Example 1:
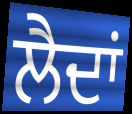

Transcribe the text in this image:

ਲੈਦਾਂ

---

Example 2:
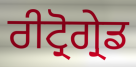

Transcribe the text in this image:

ਰੀਟ੍ਰੋਗ੍ਰੇਡ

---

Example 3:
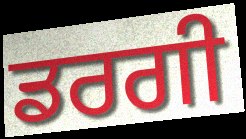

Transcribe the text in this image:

ਡਰਗੀ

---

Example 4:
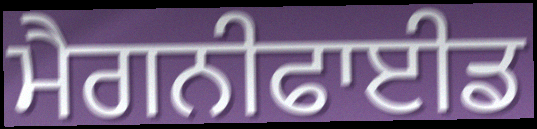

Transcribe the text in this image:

ਮੈਗਨੀਫਾਈਡ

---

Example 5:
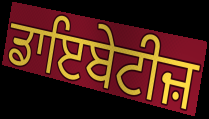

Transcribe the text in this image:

ਡਾਇਬੇਟੀਜ਼